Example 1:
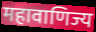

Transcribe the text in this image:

महावाणिज्य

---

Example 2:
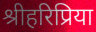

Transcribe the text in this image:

श्रीहरिप्रिया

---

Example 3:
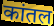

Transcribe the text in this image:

कांतल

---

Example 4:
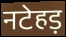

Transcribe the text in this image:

नटेहड़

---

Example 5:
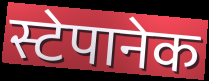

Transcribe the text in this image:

स्टेपानेक